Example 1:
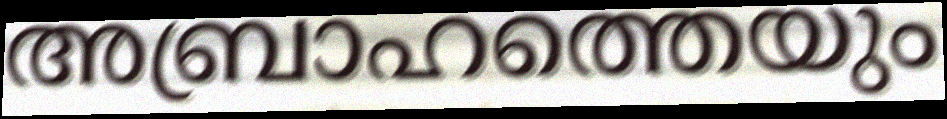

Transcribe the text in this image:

അബ്രാഹത്തെയും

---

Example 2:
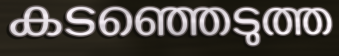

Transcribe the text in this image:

കടഞ്ഞെടുത്ത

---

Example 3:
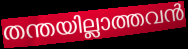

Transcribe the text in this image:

തന്തയില്ലാത്തവൻ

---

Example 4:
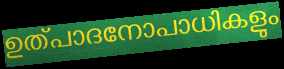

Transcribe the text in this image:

ഉത്പാദനോപാധികളും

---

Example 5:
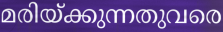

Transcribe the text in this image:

മരിയ്ക്കുന്നതുവരെ